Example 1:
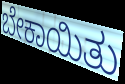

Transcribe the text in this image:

ಬೇಕಾಯಿತು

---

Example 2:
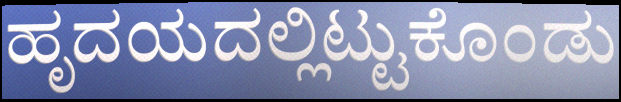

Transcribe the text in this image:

ಹೃದಯದಲ್ಲಿಟ್ಟುಕೊಂಡು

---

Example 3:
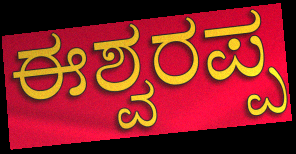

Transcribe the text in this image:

ಈಶ್ವರಪ್ಪ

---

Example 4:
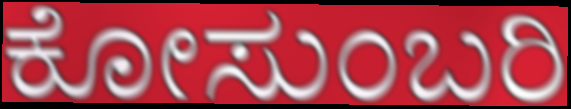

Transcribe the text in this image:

ಕೋಸುಂಬರಿ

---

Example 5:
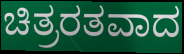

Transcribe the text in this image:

ಚಿತ್ರರತವಾದ